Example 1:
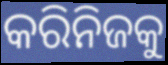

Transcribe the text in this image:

କରିନିଜକୁ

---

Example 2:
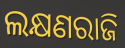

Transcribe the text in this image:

ଲକ୍ଷଣରାଜି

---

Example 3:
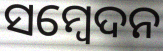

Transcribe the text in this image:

ସମ୍ଵେଦନ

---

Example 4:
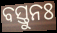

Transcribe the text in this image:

ବସ୍ତୁନଃ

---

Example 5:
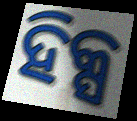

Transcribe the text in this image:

ହିକ୍ସ